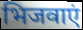
भिजवाएं